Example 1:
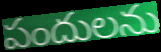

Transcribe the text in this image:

పందులను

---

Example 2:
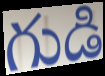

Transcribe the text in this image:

గుడి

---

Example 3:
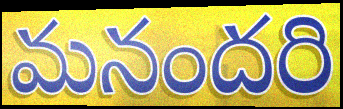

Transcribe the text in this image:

మనందరి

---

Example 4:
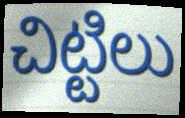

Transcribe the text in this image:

చిట్టిలు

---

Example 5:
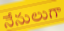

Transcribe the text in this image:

నేనులుగా